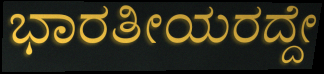
ಭಾರತೀಯರದ್ದೇ